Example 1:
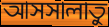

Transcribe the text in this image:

আসসালাতু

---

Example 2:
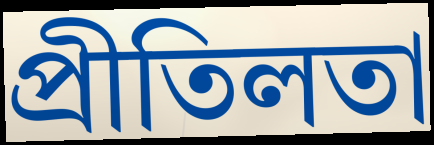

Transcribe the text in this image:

প্রীতিলতা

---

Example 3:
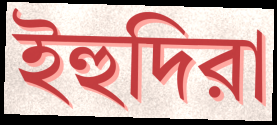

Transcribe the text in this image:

ইহুদিরা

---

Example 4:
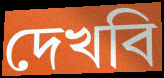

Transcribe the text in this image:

দেখবি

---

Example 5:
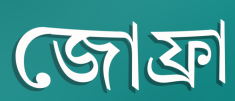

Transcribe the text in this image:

জোফ্রা